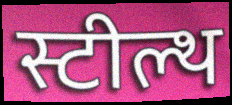
स्टील्थ